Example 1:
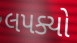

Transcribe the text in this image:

લપક્યો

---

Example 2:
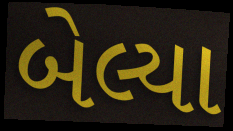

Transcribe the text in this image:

બેલ્યા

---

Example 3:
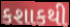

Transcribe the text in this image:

કશાકથી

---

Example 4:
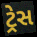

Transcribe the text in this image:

ટ્રેસ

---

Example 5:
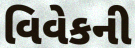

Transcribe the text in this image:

વિવેકની